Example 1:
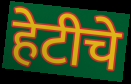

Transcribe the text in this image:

हेटीचे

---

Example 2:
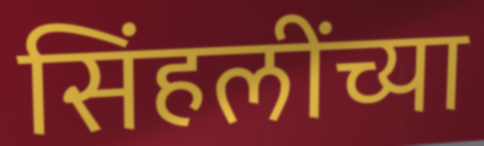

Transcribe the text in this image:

सिंहलींच्या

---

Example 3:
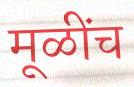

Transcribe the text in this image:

मूळींच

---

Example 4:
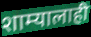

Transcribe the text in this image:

शाम्यालाही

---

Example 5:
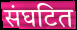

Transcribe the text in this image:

संघटित